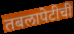
तबलापेटीची